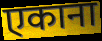
एकाना